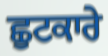
ਛੁਟਕਾਰੇ